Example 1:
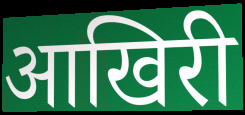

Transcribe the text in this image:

आखिरी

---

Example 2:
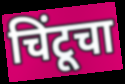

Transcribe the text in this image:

चिंटूचा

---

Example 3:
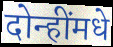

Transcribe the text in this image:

दोन्हींमधे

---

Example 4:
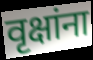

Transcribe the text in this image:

वृक्षांना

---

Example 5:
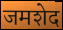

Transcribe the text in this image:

जमशेद